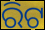
ରିଟ